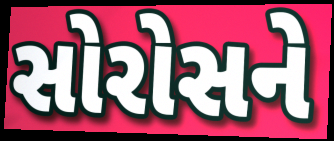
સોરોસને